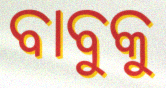
ବାବୁକୁ